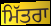
ਮਿੱਤਰਾ